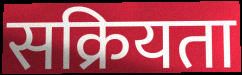
सक्रियता